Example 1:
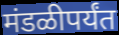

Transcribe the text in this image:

मंडळीपर्यंत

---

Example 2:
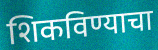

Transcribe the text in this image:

शिकविण्याचा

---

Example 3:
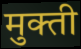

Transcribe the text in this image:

मुक्ती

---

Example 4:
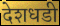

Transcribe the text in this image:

देशधडी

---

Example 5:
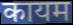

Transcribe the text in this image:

कायम